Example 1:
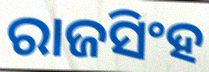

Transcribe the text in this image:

ରାଜସିଂହ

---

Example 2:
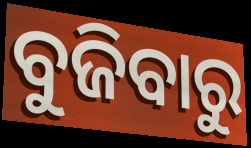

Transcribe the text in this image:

ବୁଜିବାରୁ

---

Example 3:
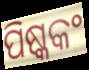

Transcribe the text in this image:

ପିଷ୍କକଂ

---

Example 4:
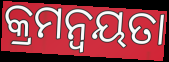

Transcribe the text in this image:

କ୍ରମନ୍ବୟତା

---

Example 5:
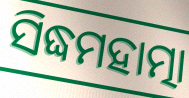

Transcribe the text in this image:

ସିଦ୍ଧମହାତ୍ମା